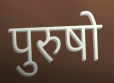
पुरुषो